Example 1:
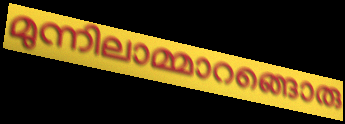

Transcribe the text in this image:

മുന്നിലാമ്മാറങ്ങൊരു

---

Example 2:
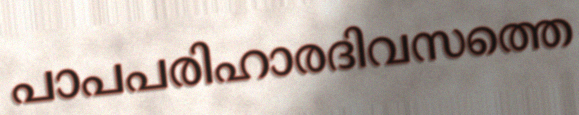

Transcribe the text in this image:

പാപപരിഹാരദിവസത്തെ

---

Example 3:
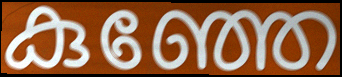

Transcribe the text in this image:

കുഞ്ഞേ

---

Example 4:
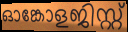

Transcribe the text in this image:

ഓങ്കോളജിസ്റ്റ്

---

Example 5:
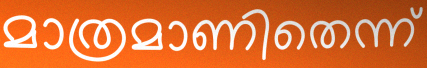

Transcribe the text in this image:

മാത്രമാണിതെന്ന്